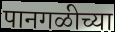
पानगळीच्या